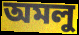
অমলু